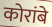
कोरांबे